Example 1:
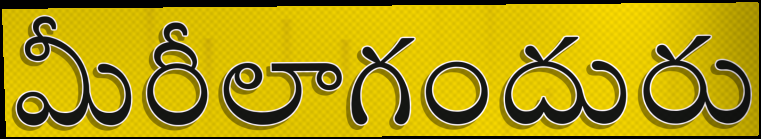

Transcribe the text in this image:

మీరీలాగందురు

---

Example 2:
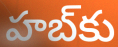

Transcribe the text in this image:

హబ్‌కు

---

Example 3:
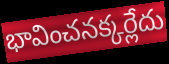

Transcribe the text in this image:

భావించనక్కర్లేదు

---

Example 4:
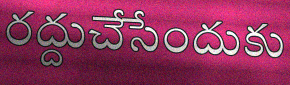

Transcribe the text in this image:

రద్దుచేసేందుకు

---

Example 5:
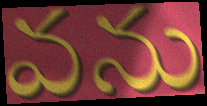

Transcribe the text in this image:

వను